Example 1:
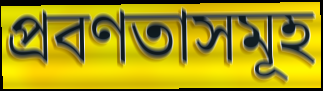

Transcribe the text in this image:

প্রবণতাসমূহ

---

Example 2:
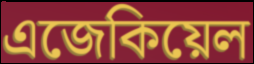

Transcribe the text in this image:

এজেকিয়েল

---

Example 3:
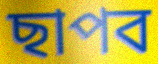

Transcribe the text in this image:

ছাপব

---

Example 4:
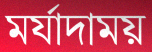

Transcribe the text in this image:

মর্যাদাময়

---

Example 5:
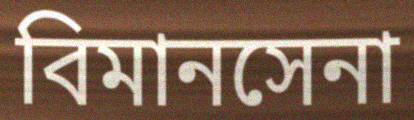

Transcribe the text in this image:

বিমানসেনা